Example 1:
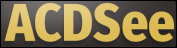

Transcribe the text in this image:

ACDSee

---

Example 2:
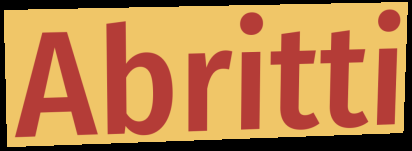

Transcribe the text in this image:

Abritti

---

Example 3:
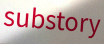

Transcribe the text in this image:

substory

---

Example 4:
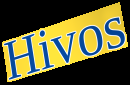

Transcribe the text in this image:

Hivos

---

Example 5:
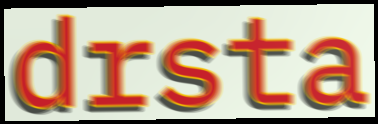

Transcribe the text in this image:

drsta